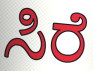
ಸಿರೆ